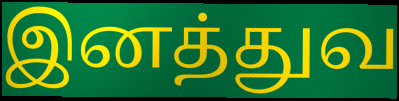
இனத்துவ